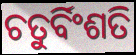
ଚତୁର୍ବିଂଶତି